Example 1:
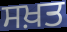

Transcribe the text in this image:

ਸਖ਼ਤ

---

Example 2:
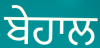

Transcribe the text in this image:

ਬੇਹਾਲ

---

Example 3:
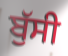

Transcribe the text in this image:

ਬੁੱਸੀ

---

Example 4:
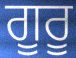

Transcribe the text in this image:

ਗੂਰੂ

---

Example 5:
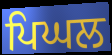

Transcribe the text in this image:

ਪਿਘਲ